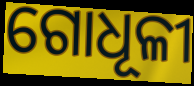
ଗୋଧୂଳୀ